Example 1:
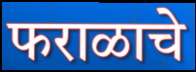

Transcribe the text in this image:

फराळाचे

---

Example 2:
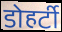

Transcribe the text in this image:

डोहर्टी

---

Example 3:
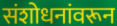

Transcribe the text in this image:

संशोधनांवरून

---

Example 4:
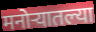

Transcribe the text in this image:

मनोर्‍यातल्या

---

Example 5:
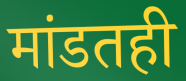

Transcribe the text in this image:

मांडतही